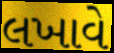
લખાવે